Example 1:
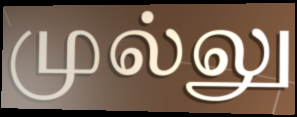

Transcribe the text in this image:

முல்லு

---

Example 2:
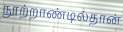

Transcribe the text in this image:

நூற்றாண்டில்தான்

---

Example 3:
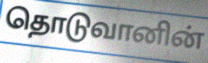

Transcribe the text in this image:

தொடுவானின்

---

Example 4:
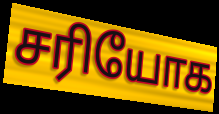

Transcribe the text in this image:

சரியோக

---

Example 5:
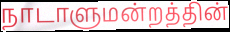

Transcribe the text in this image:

நாடாளுமன்றத்தின்